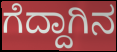
ಗೆದ್ದಾಗಿನ